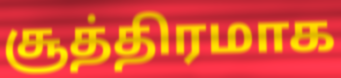
சூத்திரமாக